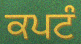
ਕਪਟੰ